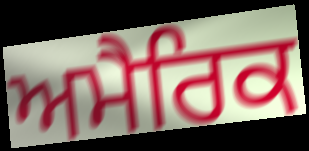
ਅਮੈਰਿਕ